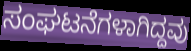
ಸಂಘಟನೆಗಳಾಗಿದ್ದವು